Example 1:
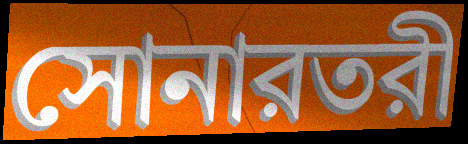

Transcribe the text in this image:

সোনারতরী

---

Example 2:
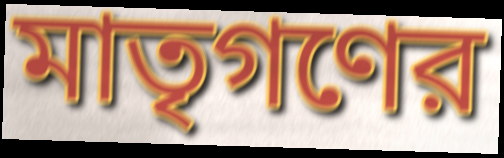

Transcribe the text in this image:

মাতৃগণের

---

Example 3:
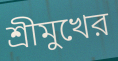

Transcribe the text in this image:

শ্রীমুখের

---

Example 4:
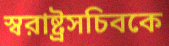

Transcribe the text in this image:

স্বরাষ্ট্রসচিবকে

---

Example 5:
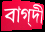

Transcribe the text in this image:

বাগ্‌দী